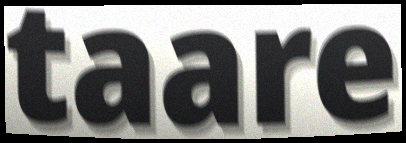
taare